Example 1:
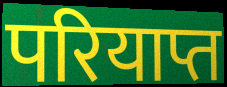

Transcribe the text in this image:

परियाप्त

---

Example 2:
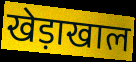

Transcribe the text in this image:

खेड़ाखाल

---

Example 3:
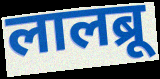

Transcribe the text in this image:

लालब्रू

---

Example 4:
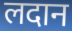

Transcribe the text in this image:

लदान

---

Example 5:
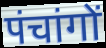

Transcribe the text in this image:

पंचांगों